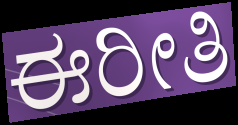
ಈರೀತಿ